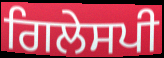
ਗਿਲੇਸਪੀ